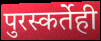
पुरस्कर्तेही